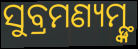
ସୁବ୍ରମଣ୍ୟମ୍ଙ୍କ